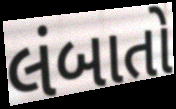
લંબાતો